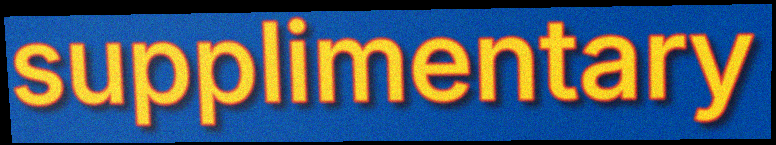
supplimentary